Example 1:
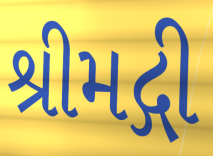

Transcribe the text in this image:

શ્રીમદ્ગી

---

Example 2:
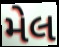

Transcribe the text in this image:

મેલ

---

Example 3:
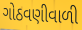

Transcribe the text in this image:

ગોઠવણીવાળી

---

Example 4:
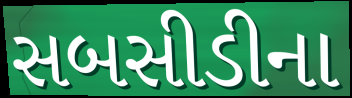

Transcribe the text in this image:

સબસીડીના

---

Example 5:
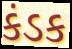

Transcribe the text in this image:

કંડક